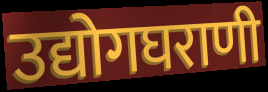
उद्योगघराणी